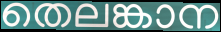
തെലങ്കാന